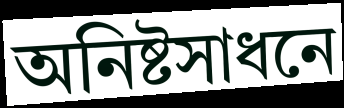
অনিষ্টসাধনে